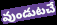
వుండుటచే